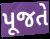
પૂજતે